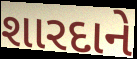
શારદાને